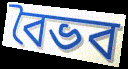
বৈভব